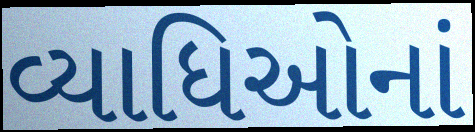
વ્યાધિઓનાં